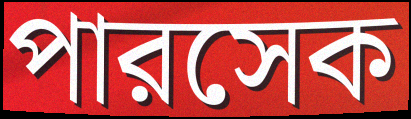
পারসেক